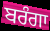
ਬਰੰਗਾ